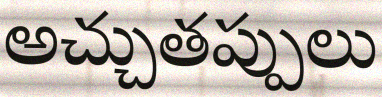
అచ్చుతప్పులు